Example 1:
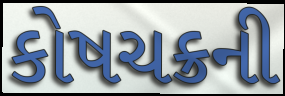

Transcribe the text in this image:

કોષચક્રની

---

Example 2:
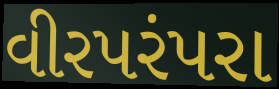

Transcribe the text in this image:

વીરપરંપરા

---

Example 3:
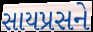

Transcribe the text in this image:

સાયપ્રસને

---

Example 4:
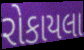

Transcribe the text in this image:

રોકાયલા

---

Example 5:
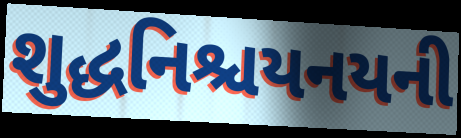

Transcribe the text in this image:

શુદ્ધનિશ્ચયનયની